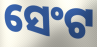
ସେଂଟ